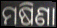
ମଷିଣା